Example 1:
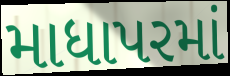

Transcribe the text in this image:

માધાપરમાં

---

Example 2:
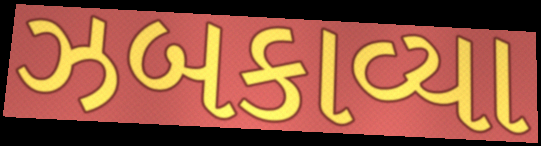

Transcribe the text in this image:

ઝબકાવ્યા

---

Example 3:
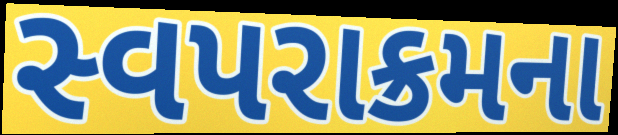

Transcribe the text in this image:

સ્વપરાક્રમના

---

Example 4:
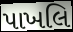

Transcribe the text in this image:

પાખલિ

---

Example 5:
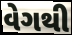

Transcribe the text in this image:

વેગથી